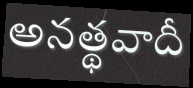
అనత్థవాదీ